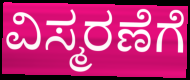
ವಿಸ್ಮರಣೆಗೆ